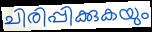
ചിരിപ്പിക്കുകയും